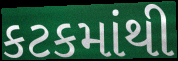
કટકમાંથી